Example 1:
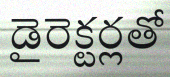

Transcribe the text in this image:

డైరెక్టర్లతో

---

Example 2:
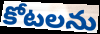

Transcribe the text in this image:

కోటలను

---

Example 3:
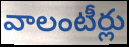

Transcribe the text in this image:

వాలంటీర్లు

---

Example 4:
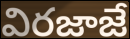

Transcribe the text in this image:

విరజాజే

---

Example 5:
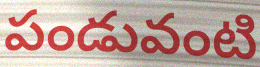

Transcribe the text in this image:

పండువంటి